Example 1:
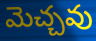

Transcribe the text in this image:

మెచ్చవు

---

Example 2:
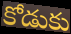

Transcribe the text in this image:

కోడుకు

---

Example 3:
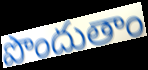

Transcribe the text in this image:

పొందుతాం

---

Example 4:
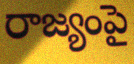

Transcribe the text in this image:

రాజ్యంపై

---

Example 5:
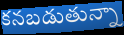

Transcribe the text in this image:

కనబడుతున్నా